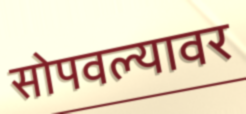
सोपवल्यावर